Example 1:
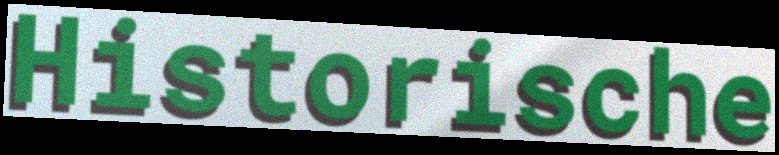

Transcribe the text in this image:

Historische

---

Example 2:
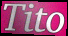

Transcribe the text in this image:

Tito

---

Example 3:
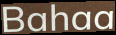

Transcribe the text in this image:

Bahaa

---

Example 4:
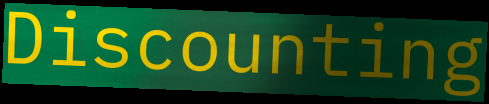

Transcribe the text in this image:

Discounting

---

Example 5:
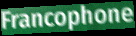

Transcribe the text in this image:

Francophone